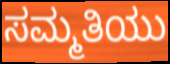
ಸಮ್ಮತಿಯು